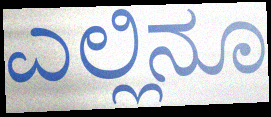
ಎಲ್ಲಿನೂ